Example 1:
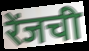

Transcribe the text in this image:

रेंजची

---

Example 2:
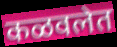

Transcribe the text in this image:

कळवलेत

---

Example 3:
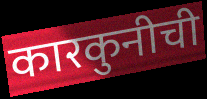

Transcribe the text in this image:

कारकुनीची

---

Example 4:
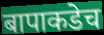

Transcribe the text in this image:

बापाकडेच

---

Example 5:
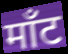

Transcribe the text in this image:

माँट